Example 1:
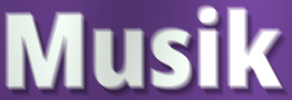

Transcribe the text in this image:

Musik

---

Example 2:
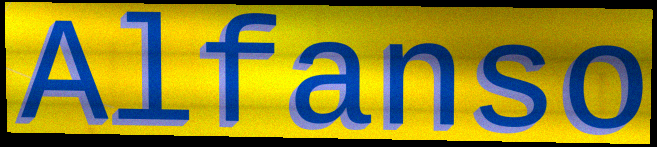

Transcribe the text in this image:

Alfanso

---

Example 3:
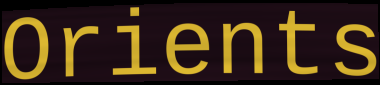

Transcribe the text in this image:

Orients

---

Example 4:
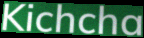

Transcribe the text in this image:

Kichcha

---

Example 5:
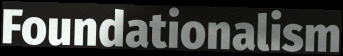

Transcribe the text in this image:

Foundationalism